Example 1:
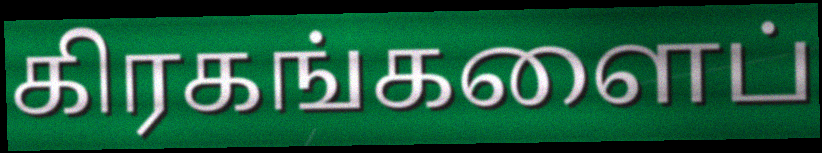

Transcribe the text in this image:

கிரகங்களைப்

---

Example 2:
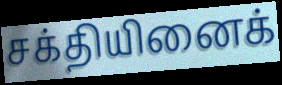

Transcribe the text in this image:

சக்தியினைக்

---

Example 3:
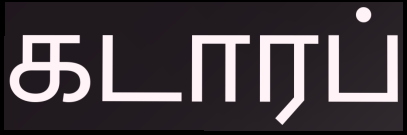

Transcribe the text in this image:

கடாரப்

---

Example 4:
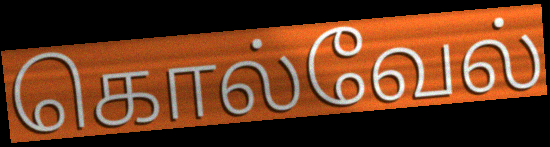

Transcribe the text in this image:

கொல்வேல்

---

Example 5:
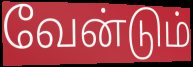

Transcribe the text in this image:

வேன்டும்